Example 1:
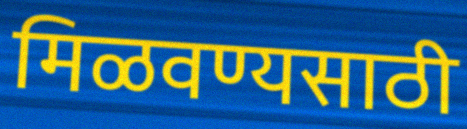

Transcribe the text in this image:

मिळवण्यसाठी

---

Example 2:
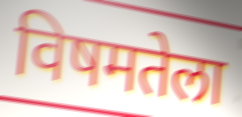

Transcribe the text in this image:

विषमतेला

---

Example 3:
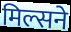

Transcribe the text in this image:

मिल्सने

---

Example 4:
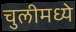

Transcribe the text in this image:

चुलीमध्ये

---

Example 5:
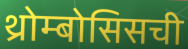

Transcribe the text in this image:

थ्रोम्बोसिसची